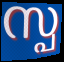
സ്പ